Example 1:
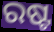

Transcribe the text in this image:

ରଷ୍ଟ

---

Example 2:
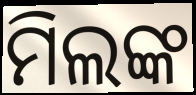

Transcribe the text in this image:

ମିଲଙ୍କ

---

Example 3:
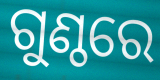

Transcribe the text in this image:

ଗୁଣ୍ଠରେ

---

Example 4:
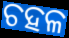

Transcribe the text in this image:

ଚହଳ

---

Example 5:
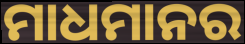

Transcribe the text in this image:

ମାଧମାନର